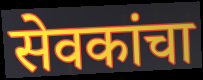
सेवकांचा